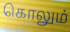
கொலும்